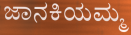
ಜಾನಕಿಯಮ್ಮ